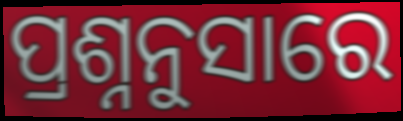
ପ୍ରଶ୍ନନୁସାରେ